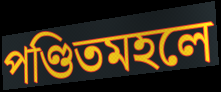
পণ্ডিতমহলে